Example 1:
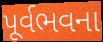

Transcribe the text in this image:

પૂર્વભવના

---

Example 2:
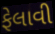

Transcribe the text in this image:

ફેલાવી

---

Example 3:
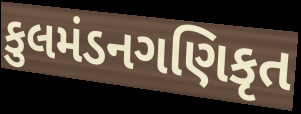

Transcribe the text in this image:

કુલમંડનગણિકૃત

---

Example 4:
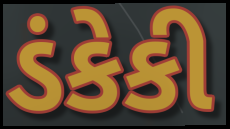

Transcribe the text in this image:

ડંકેકી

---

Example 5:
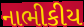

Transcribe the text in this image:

નાભીકીય